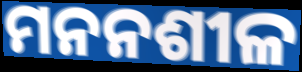
ମନନଶୀଳ